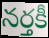
నర్తకీ